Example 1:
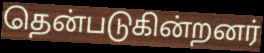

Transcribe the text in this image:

தென்படுகின்றனர்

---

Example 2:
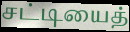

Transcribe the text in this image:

சட்டியைத்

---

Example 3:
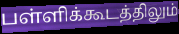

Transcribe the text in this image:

பள்ளிக்கூடத்திலும்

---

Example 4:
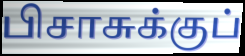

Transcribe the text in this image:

பிசாசுக்குப்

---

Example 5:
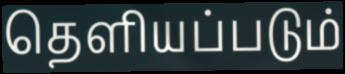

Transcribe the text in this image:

தெளியப்படும்